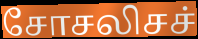
சோசலிசச்